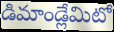
డిమాండ్లేమిటో